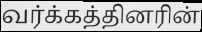
வர்க்கத்தினரின்